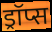
ड्रॉप्‍स